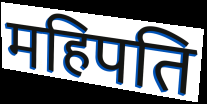
महिपति